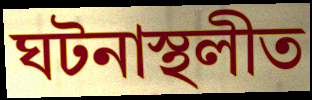
ঘটনাস্থলীত